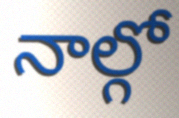
నాల్గో